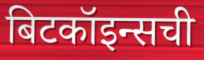
बिटकॉइन्सची